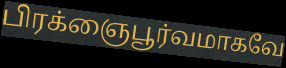
பிரக்ஞைபூர்வமாகவே